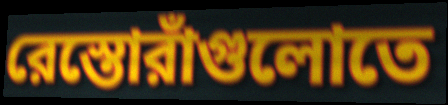
রেস্তোরাঁগুলোতে